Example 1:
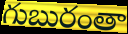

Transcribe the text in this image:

గుబురంతా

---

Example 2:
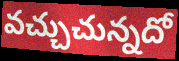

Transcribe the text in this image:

వచ్చుచున్నదో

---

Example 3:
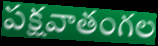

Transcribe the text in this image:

పక్షవాతంగల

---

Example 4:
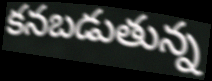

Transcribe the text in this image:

కనబడుతున్న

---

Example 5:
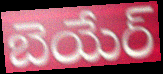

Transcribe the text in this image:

బెయేర్